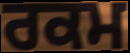
ਰਕਮ